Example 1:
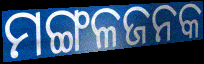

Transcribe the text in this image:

ମଙ୍ଗଳଜନକ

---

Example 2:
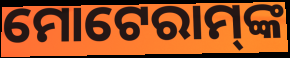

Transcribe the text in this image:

ମୋଟେରାମ୍‌ଙ୍କ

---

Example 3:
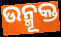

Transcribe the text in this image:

ଉନ୍ମୂକ୍ତ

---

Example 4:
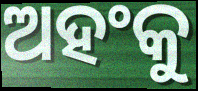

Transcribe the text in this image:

ଅହଂକୁ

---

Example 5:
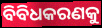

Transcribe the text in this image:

ବିବିଧକରଣକୁ